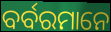
ବର୍ବରମାନେ